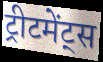
ट्रीटमेंट्स